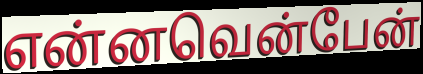
என்னவென்பேன்